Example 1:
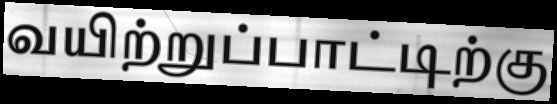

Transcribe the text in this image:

வயிற்றுப்பாட்டிற்கு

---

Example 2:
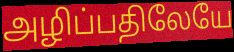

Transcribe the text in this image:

அழிப்பதிலேயே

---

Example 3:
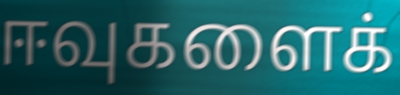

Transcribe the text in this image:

ஈவுகளைக்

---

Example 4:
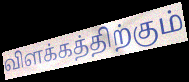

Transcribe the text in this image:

விளக்கத்திற்கும்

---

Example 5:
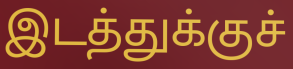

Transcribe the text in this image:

இடத்துக்குச்